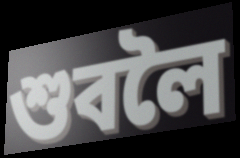
শুবলৈ